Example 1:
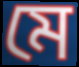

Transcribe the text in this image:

মে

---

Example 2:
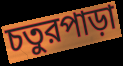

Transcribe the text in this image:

চতুরপাড়া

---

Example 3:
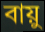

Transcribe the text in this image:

বায়ু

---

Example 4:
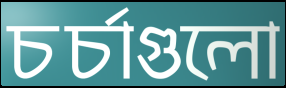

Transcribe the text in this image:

চর্চাগুলো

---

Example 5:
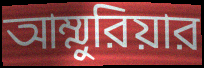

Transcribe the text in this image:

আম্মুরিয়ার